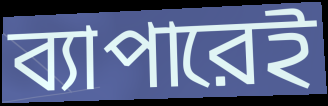
ব্যাপারেই